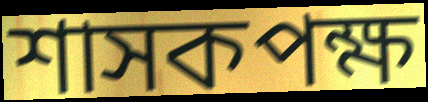
শাসকপক্ষ